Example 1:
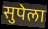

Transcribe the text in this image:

सुपेला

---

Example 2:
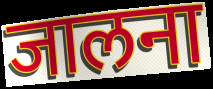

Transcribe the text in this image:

जालना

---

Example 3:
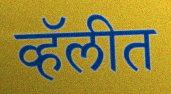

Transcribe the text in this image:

व्हॅलीत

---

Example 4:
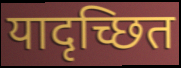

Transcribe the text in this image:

यादृच्छित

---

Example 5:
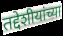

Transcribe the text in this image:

तद्देशीयांच्या